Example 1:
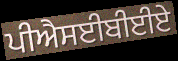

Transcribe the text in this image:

ਪੀਐਸਈਬੀਈਏ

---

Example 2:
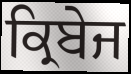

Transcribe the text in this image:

ਕ੍ਰਿਬੇਜ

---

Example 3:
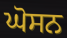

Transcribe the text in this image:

ਘੋਸਨ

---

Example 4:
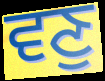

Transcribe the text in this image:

ਵਣੁ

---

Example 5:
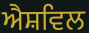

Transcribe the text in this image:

ਐਸ਼ਵਿਲ